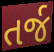
તર્જ